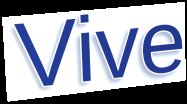
Vive